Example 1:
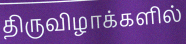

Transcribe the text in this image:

திருவிழாக்களில்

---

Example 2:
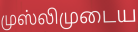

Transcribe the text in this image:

முஸ்லிமுடைய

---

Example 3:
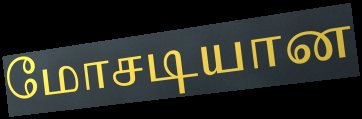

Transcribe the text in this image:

மோசடியான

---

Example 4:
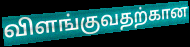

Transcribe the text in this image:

விளங்குவதற்கான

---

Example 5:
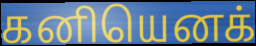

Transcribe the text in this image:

கனியெனக்